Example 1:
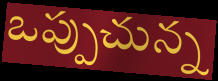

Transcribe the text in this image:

ఒప్పుచున్న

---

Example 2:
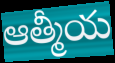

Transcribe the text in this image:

ఆత్మీయ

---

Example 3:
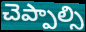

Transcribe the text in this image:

చెప్పాల్సి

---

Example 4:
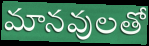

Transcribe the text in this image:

మానవులతో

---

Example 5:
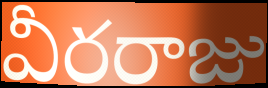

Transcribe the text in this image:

వీరరాజు